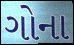
ગોના